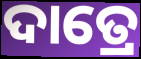
ଦାତ୍ରେ